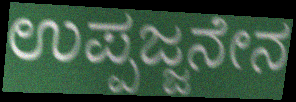
ಉಪ್ಪಜ್ಜನೇನ